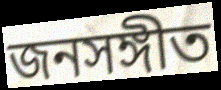
জনসঙ্গীত